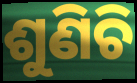
ଶୁଣିଚି